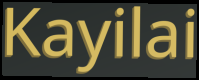
Kayilai